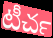
టీచర్‍